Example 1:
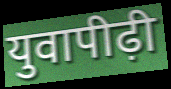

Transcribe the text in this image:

युवापीढ़ी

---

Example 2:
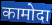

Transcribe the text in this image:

कामोदा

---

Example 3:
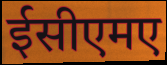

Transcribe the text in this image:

ईसीएमए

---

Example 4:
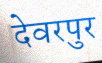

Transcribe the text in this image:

देवरपुर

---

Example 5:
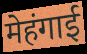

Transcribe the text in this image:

मेहंगाई